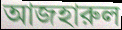
আজহারুল